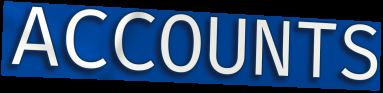
ACCOUNTS